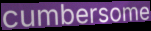
cumbersome